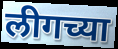
लीगच्या